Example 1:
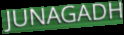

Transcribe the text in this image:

JUNAGADH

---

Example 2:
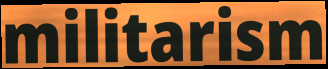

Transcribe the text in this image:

militarism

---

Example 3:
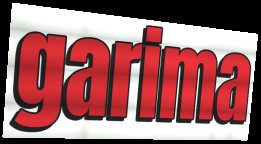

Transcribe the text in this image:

garima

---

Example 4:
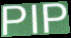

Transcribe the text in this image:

PIP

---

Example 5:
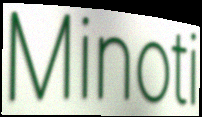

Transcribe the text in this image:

Minoti